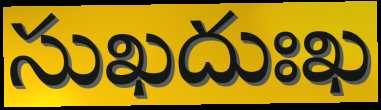
సుఖదుఃఖ